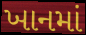
ખાનમાં